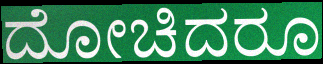
ದೋಚಿದರೂ